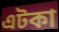
এটকা